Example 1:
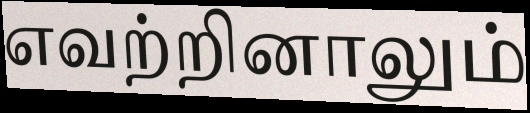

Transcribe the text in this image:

எவற்றினாலும்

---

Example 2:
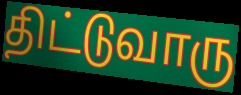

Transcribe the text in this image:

திட்டுவாரு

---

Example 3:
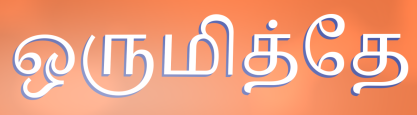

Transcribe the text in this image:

ஒருமித்தே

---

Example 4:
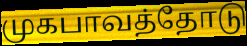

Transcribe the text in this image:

முகபாவத்தோடு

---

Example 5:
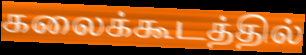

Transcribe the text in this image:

கலைக்கூடத்தில்